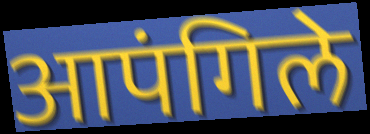
आपंगिले